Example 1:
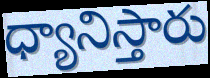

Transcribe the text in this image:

ధ్యానిస్తారు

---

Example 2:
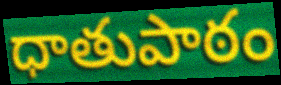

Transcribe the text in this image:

ధాతుపాఠం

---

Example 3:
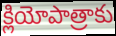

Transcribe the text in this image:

క్లియోపాత్రాకు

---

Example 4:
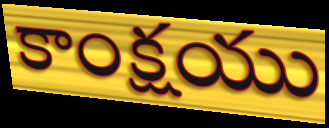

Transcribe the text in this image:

కాంక్షయు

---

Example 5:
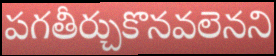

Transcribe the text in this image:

పగతీర్చుకొనవలెనని